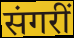
संगरीं